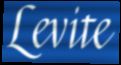
Levite